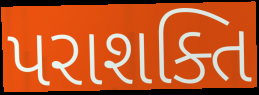
પરાશક્તિ